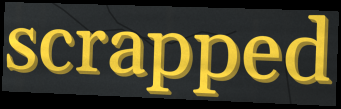
scrapped